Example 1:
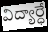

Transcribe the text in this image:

విద్యార్ధే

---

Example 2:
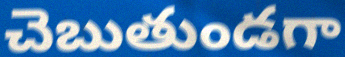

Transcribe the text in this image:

చెబుతుండగా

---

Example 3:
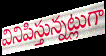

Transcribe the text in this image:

వినిపిస్తున్నట్లుగా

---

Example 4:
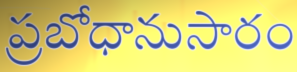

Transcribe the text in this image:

ప్రబోధానుసారం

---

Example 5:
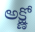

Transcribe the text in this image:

అక్ష్ణో